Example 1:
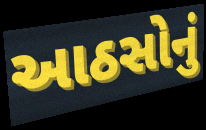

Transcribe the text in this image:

આઠસોનું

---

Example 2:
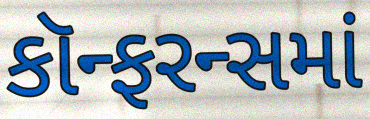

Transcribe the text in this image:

કૉન્ફરન્સમાં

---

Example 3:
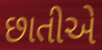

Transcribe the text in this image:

છાતીએ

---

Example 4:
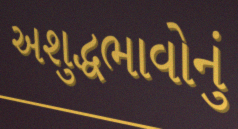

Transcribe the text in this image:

અશુદ્ધભાવોનું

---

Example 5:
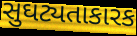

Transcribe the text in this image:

સુઘટ્યતાકારક